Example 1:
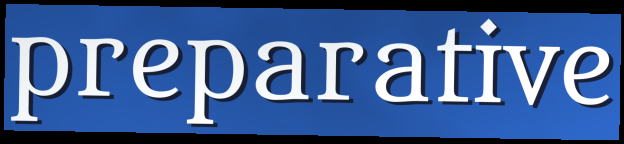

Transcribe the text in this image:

preparative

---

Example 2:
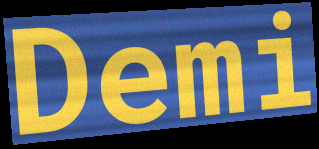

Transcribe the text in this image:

Demi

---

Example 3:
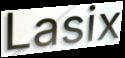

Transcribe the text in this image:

Lasix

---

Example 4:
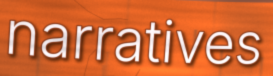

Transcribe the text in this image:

narratives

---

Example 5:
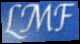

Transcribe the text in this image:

LMF